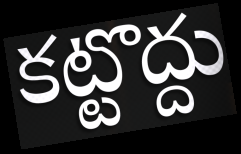
కట్టొద్దు